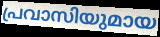
പ്രവാസിയുമായ